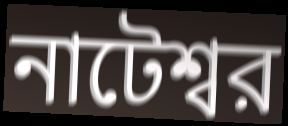
নাটেশ্বর